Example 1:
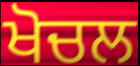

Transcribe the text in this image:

ਖੋਚਲ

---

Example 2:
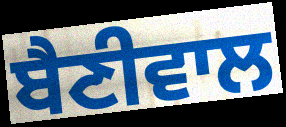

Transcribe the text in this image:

ਬੈਣੀਵਾਲ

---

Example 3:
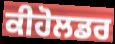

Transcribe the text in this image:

ਕੀਹੋਲਡਰ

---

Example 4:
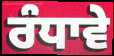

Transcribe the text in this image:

ਰੰਧਾਵੇ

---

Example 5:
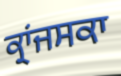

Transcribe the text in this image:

ਕ੍ਰਾਂਜਸਕਾ